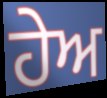
ਹੇਅ